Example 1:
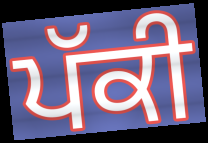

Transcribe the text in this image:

ਪੱਕੀ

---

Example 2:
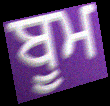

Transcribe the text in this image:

ਬੂਮ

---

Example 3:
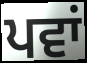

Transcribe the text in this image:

ਪਵਾਂ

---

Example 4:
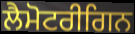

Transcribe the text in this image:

ਲੈਮੋਟਰੀਗਿਨ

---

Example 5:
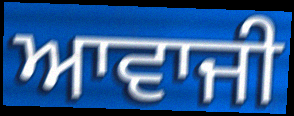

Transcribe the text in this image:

ਆਵਾਜੀ